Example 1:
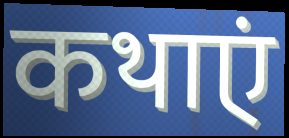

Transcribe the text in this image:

कथाएं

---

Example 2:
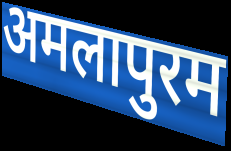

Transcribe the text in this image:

अमलापुरम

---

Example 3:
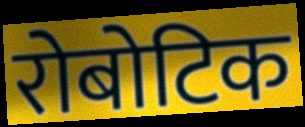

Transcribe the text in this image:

रोबोटिक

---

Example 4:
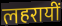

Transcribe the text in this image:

लहरायीं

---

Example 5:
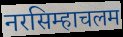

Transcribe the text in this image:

नरसिम्हाचलम